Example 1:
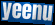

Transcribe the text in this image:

yeenu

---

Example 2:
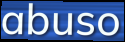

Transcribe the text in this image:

abuso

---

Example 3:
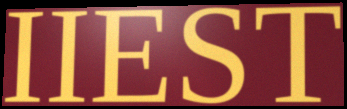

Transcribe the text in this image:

IIEST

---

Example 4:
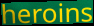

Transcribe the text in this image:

heroins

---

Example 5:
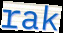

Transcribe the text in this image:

rak